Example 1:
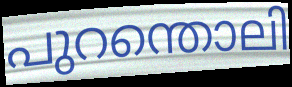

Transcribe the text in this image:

പുറന്തൊലി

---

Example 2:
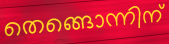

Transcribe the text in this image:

തെങ്ങൊന്നിന്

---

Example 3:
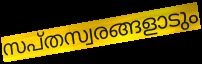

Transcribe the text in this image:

സപ്തസ്വരങ്ങളാടും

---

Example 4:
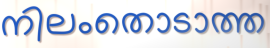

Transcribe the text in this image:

നിലംതൊടാത്ത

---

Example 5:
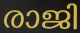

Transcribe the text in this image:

രാജി